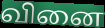
வினை